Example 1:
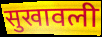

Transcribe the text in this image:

सुखावली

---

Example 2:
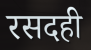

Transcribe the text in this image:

रसदही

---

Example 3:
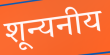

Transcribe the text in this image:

शून्यनीय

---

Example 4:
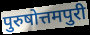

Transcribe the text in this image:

पुरुषोत्तमपुरी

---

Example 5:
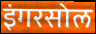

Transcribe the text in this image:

इंगरसोल